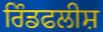
ਰਿੰਡਫਲੀਸ਼